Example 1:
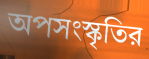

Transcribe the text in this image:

অপসংস্কৃতির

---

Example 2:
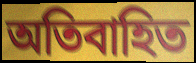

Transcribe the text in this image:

অতিবাহিত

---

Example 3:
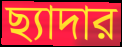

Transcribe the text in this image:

ছ্যাদার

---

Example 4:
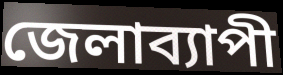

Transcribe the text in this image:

জেলাব্যাপী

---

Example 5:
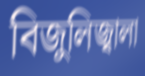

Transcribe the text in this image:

বিজুলিজ্বালা